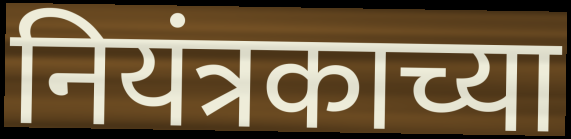
नियंत्रकाच्या